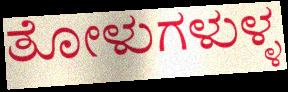
ತೋಳುಗಳುಳ್ಳ